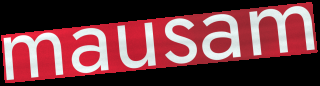
mausam